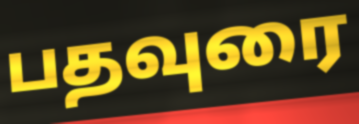
பதவுரை